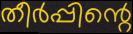
തീർപ്പിന്റെ